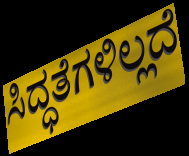
ಸಿದ್ಧತೆಗಳಿಲ್ಲದೆ